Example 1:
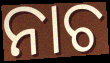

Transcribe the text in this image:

ନାଚ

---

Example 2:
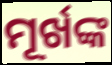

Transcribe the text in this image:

ମୂର୍ଖଙ୍କ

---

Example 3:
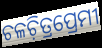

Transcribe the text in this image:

ଚଳଚ଼ିତ୍ରପ୍ରେମୀ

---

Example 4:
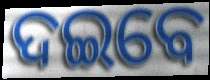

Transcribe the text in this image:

ଦଇବେ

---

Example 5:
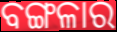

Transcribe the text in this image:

ବଙ୍ଗଳାର